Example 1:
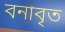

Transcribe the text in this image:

বনাবৃত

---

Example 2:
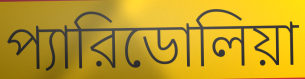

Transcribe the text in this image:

প্যারিডোলিয়া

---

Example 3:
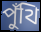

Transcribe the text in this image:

পুঁথি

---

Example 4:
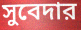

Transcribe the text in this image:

সুবেদার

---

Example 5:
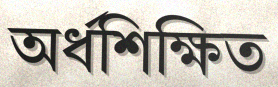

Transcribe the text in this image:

অর্ধশিক্ষিত